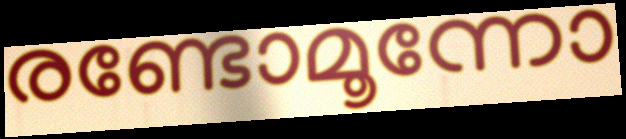
രണ്ടോമൂന്നോ